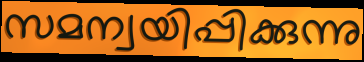
സമന്വയിപ്പിക്കുന്നു